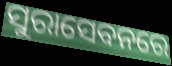
ସୁରାସେବନରେ